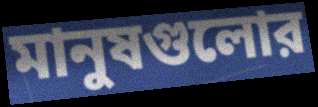
মানুষগুলোর